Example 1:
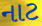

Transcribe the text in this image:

નાટ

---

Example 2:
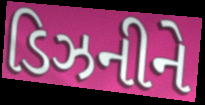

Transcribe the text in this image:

ડિઝનીને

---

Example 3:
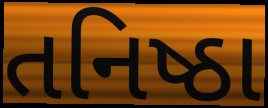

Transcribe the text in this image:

તનિષ્ઠા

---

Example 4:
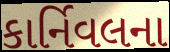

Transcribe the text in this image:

કાર્નિવલના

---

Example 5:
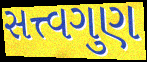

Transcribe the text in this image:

સત્ત્વગુણ